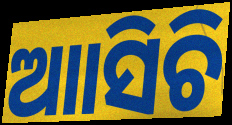
ଆାସିଚି